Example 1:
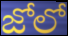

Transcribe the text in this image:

జోలో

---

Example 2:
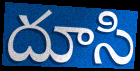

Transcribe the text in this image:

దూసి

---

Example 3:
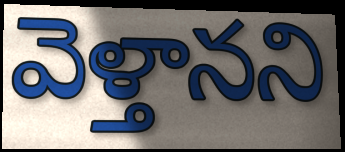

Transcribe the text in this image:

వెళ్తానని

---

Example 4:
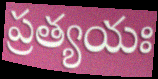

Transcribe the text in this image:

ప్రత్యయః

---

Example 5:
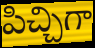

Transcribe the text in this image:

పిచ్చిగా